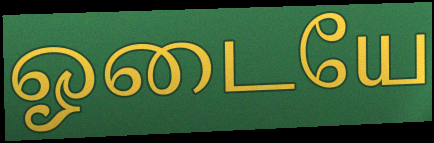
ஓடையே